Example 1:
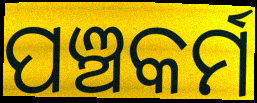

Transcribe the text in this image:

ପଞ୍ଚକର୍ମ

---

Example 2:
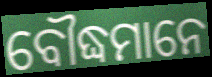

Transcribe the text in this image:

ବୌଦ୍ଧମାନେ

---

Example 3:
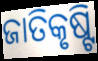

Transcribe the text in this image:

ଜାତିକୃଷ୍ଟି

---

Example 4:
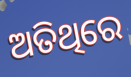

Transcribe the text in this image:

ଅତିଥିରେ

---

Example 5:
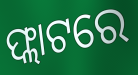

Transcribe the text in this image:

ଫ୍ଲାଟରେ